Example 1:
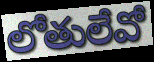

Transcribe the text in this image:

లోతులేవో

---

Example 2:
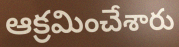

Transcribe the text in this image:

ఆక్రమించేశారు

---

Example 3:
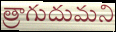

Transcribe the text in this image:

త్రాగుదుమని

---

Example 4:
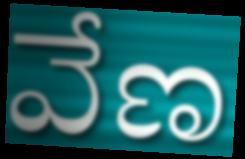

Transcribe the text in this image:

వేణ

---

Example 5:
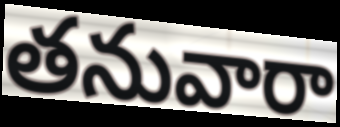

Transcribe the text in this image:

తనువారా